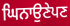
ਘਿਨਾਉਣੇਪਣ